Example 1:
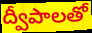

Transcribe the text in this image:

ద్వీపాలతో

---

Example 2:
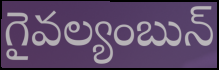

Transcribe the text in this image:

గైవల్యంబున్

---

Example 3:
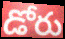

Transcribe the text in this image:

డోరు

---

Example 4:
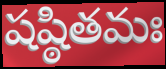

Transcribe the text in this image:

షష్ఠితమః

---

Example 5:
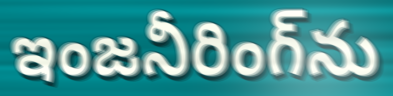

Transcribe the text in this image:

ఇంజనీరింగ్‌ను